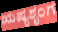
ಋಷ್ಯಶೃಂಗ